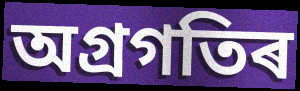
অগ্ৰগতিৰ